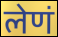
लेणं